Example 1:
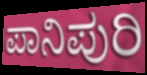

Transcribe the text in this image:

ಪಾನಿಪುರಿ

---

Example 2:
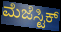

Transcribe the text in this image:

ಮೆಜೆಸ್ಟಿಕ್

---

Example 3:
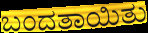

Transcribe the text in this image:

ಬಂದತಾಯಿತು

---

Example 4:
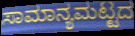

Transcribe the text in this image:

ಸಾಮಾನ್ಯಮಟ್ಟದ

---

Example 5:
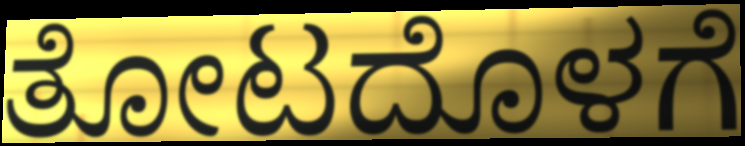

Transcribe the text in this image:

ತೋಟದೊಳಗೆ